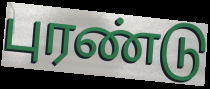
புரண்டு